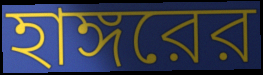
হাঙ্গরের